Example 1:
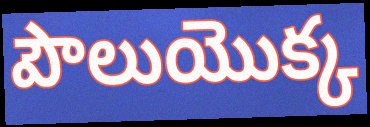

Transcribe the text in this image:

పౌలుయొక్క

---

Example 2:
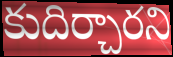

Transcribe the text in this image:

కుదిర్చారని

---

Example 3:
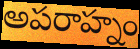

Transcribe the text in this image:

అపరాహ్నం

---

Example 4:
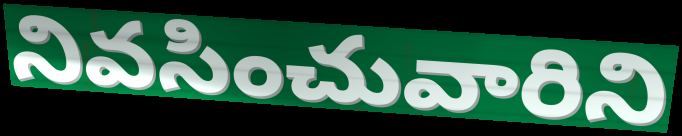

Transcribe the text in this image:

నివసించువారిని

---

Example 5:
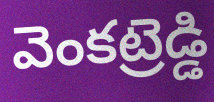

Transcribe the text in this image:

వెంకట్రెడ్డి